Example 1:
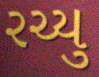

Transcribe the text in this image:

રચ્યુ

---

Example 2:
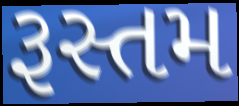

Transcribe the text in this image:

રૂસ્તમ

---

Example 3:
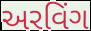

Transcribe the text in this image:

અરવિંગ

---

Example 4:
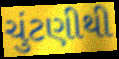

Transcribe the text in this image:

ચુંટણીથી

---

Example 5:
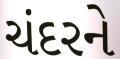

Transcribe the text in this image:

ચંદરને